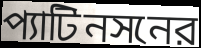
প্যাটিনসনের